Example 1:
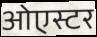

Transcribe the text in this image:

ओएस्टर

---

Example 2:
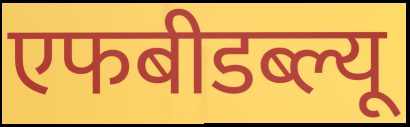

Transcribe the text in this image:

एफबीडब्ल्यू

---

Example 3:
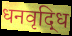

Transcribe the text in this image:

धनवृद्धि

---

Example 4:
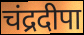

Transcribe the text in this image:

चंद्रदीपा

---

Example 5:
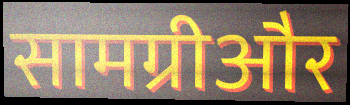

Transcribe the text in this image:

सामग्रीऔर